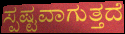
ಸ್ಪಷ್ಟವಾಗುತ್ತದೆ